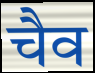
चैव